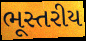
ભૂસ્તરીય